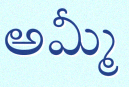
అమ్మీ